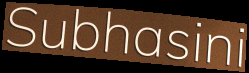
Subhasini